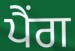
ਪੈਂਗ